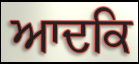
ਆਦਕਿ